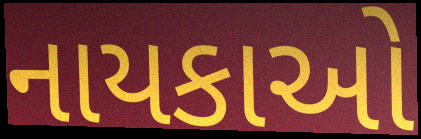
નાયકાઓ